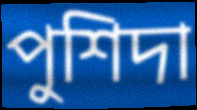
পুশিদা